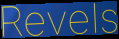
Revels